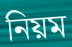
নিয়ম